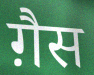
ग़ैस